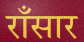
राँसार